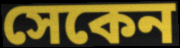
সেকেন